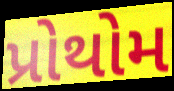
પ્રોથોમ